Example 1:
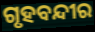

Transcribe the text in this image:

ଗୃହବନ୍ଦୀର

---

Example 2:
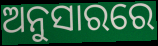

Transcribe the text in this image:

ଅନୁସାରରେ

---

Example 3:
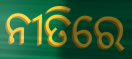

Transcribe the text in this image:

ନୀତିରେ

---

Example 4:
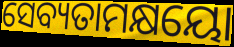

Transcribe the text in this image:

ସେବ୍ୟତାମକ୍ଷୟୋ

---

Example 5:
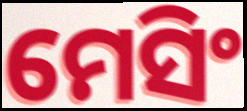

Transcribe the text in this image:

ମେସିଂ